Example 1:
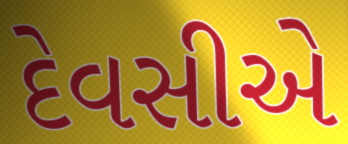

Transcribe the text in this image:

દેવસીએ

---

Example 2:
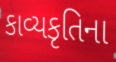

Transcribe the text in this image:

કાવ્યકૃતિના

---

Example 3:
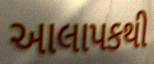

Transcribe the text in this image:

આલાપકથી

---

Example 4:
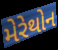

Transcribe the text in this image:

મેરેથોન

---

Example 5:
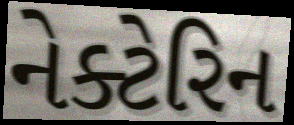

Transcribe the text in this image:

નેક્ટેરિન